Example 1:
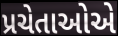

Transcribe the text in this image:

પ્રચેતાઓએ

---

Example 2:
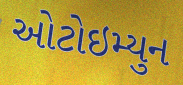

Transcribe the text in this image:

ઓટોઇમ્યુન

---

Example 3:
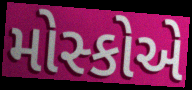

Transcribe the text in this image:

મોસ્કોએ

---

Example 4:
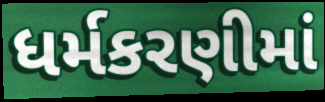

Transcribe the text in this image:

ધર્મકરણીમાં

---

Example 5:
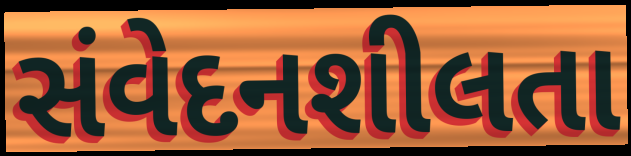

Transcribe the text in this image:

સંવેદનશીલતા